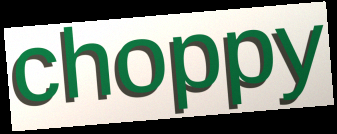
choppy